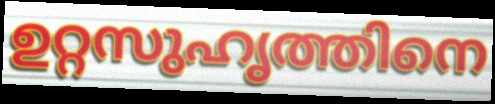
ഉറ്റസുഹൃത്തിനെ